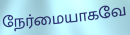
நேர்மையாகவே